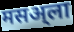
मसअ्ला